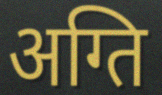
अग्ति